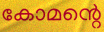
കോമന്റെ